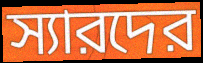
স্যারদের